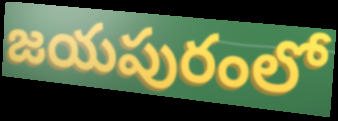
జయపురంలో